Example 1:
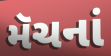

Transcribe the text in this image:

મૅચનાં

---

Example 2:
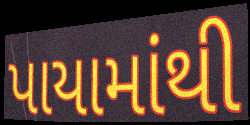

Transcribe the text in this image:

પાયામાંથી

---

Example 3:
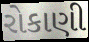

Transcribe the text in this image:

રોકાણી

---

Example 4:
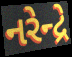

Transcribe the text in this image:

નરેન્દ્રે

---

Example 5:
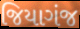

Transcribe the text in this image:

જિયાગંજ